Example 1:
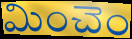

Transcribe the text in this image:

మించెం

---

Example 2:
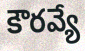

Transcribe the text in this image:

కౌరవ్యే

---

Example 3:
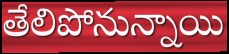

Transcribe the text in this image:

తేలిపోనున్నాయి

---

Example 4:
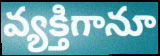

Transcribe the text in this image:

వ్యక్తిగానూ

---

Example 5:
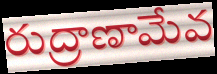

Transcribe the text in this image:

రుద్రాణామేవ